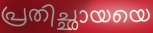
പ്രതിച്ഛായയെ